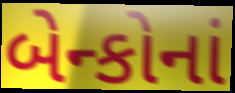
બેન્કોનાં